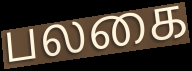
பலகை